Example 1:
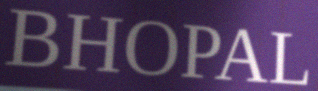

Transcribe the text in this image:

BHOPAL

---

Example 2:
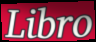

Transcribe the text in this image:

Libro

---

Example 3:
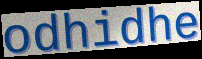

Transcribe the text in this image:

odhidhe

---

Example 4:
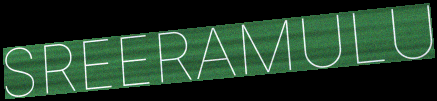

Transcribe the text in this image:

SREERAMULU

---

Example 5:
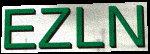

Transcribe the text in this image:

EZLN